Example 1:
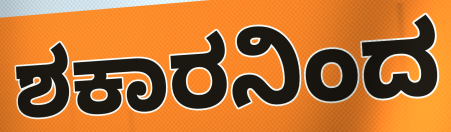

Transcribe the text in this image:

ಶಕಾರನಿಂದ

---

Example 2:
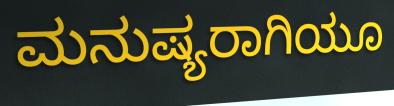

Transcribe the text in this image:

ಮನುಷ್ಯರಾಗಿಯೂ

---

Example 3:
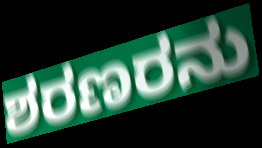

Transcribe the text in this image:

ಶರಣರನು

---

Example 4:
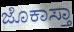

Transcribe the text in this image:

ಜೊಕಾಸ್ತಾ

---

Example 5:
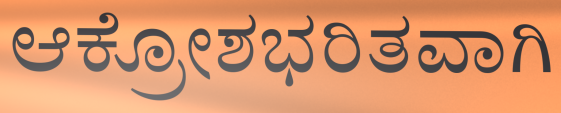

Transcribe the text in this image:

ಆಕ್ರೋಶಭರಿತವಾಗಿ